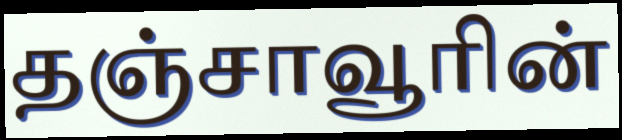
தஞ்சாவூரின்